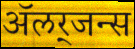
ॲलर्जन्स